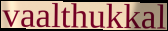
vaalthukkal